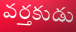
వర్తకుడు